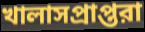
খালাসপ্রাপ্তরা